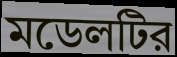
মডেলটির